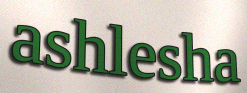
ashlesha